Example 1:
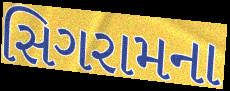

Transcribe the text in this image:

સિગરામના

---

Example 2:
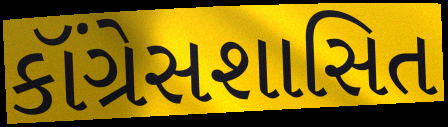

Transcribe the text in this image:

કૉંગ્રેસશાસિત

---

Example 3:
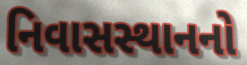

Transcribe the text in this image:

નિવાસસ્થાનનો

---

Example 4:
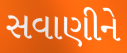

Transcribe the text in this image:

સવાણીને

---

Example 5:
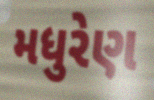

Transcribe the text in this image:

મધુરેણ